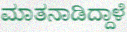
ಮಾತನಾಡಿದ್ದಾಳೆ